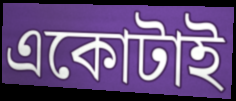
একোটাই